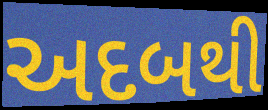
અદબથી